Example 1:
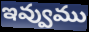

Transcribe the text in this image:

ఇవ్వుము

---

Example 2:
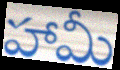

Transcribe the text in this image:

హామీ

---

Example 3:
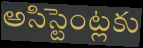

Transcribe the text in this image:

అసిస్టెంట్లకు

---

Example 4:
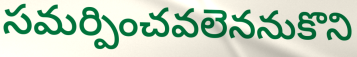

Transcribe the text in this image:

సమర్పించవలెననుకొని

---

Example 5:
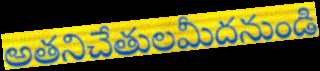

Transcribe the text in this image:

అతనిచేతులమీదనుండి